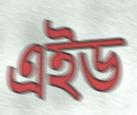
এইড